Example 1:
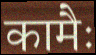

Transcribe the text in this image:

कामैः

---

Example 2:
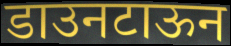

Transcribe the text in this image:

डाउनटाऊन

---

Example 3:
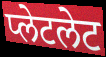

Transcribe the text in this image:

प्लेटलेट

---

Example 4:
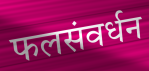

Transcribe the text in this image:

फलसंवर्धन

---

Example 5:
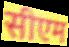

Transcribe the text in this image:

सीएम